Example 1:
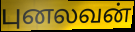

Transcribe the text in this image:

புனலவன்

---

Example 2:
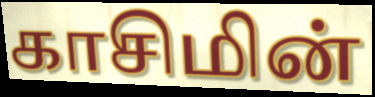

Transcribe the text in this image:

காசிமின்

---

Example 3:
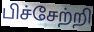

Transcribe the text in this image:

பிச்சேற்றி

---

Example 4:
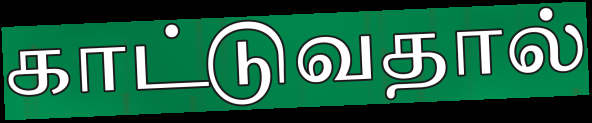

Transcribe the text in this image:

காட்டுவதால்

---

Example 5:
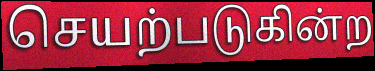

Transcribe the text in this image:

செயற்படுகின்ற